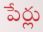
పేర్లు